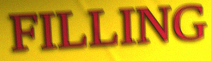
FILLING